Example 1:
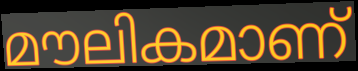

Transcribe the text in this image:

മൗലികമാണ്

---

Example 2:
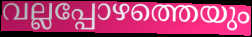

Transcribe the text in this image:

വല്ലപ്പോഴത്തെയും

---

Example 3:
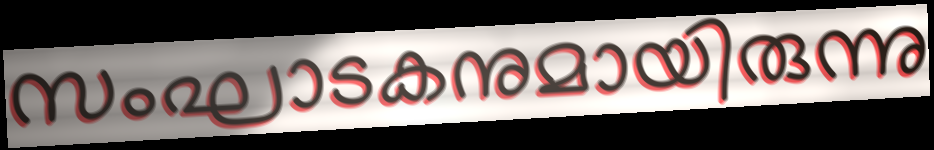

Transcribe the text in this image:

സംഘാടകനുമായിരുന്നു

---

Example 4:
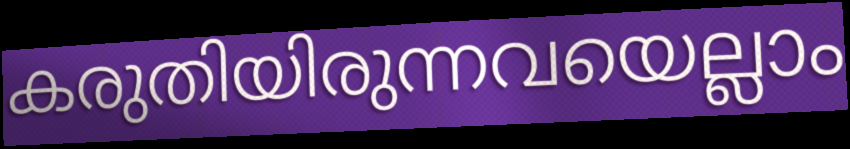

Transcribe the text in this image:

കരുതിയിരുന്നവയെല്ലാം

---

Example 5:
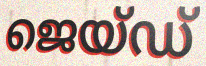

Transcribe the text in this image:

ജെയ്ഡ്